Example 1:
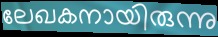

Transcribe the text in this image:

ലേഖകനായിരുന്നു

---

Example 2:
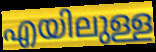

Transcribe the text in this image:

എയിലുള്ള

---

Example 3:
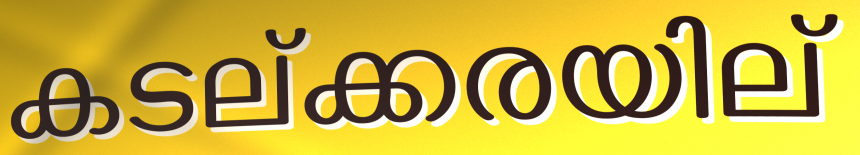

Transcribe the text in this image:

കടല്ക്കരയില്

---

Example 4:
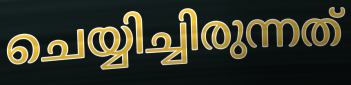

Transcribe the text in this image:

ചെയ്യിച്ചിരുന്നത്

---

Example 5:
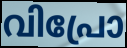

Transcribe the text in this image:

വിപ്രോ